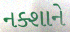
નક્શાને